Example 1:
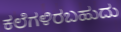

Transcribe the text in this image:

ಕಲೆಗಳಿರಬಹುದು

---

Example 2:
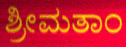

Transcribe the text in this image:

ಶ್ರೀಮತಾಂ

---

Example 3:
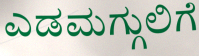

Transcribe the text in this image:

ಎಡಮಗ್ಗುಲಿಗೆ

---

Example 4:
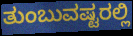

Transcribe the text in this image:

ತುಂಬುವಷ್ಟರಲ್ಲಿ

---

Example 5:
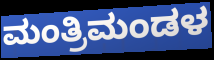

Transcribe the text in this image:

ಮಂತ್ರಿಮಂಡಳ